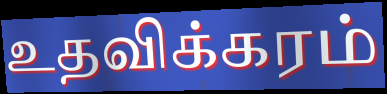
உதவிக்கரம்